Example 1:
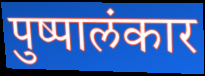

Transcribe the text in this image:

पुष्पालंकार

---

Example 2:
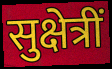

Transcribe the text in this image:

सुक्षेत्रीं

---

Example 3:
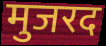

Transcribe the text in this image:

मुजरद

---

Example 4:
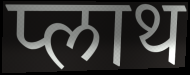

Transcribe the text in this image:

प्लाथ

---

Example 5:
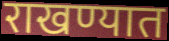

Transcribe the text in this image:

राखण्यात